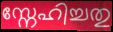
സ്നേഹിച്ചതു